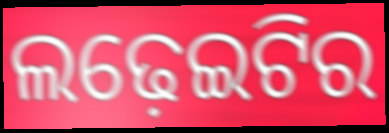
ଲଢ଼େଇଟିର